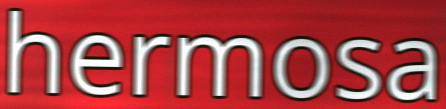
hermosa